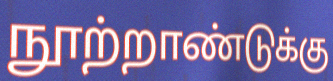
நூற்றாண்டுக்கு